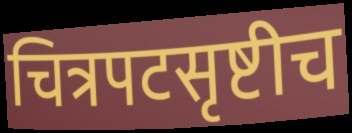
चित्रपटसृष्टीच